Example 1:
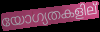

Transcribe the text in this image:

യോഗ്യതകളില്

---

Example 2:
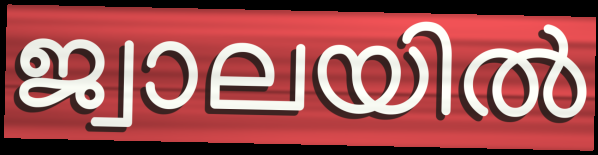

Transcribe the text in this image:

ജ്വാലയിൽ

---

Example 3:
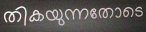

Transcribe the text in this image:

തികയുന്നതോടെ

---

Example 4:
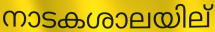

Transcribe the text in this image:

നാടകശാലയില്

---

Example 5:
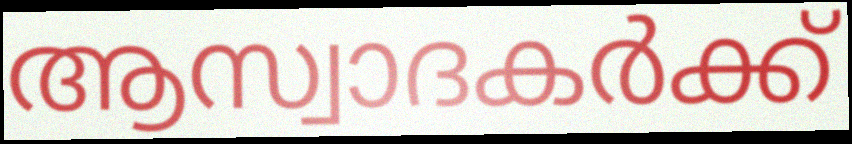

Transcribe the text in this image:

ആസ്വാദകർക്ക്